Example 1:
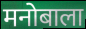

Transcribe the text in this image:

मनोबाला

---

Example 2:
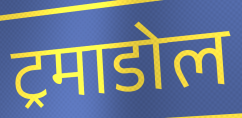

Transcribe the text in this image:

ट्रमाडोल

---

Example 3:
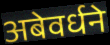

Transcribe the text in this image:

अबेवर्धने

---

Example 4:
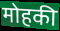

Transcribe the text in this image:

मोहकी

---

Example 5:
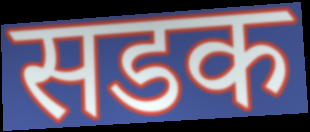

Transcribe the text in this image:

सडक